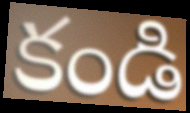
కండి